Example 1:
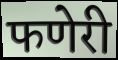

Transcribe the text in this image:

फणेरी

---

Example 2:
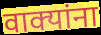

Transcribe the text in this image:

वाक्यांना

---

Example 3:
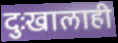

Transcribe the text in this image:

दुःखालाही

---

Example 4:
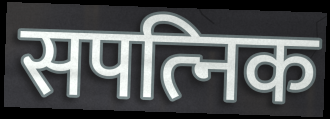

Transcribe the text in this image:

सपत्‍निक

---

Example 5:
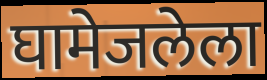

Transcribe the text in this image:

घामेजलेला